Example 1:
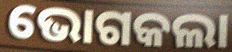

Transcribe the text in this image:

ଭୋଗକଲା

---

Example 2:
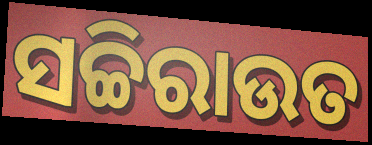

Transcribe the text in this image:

ସଚ୍ଚିରାଉତ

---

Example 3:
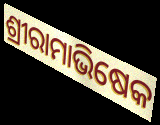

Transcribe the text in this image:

ଶ୍ରୀରାମାଭିଷେକ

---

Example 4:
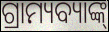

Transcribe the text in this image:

ଗ୍ରାମ୍ୟବ୍ୟାଙ୍କ୍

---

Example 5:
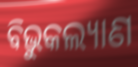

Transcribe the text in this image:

ବିଭୁକଲ୍ୟାଣ